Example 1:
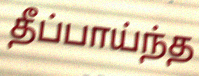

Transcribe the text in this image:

தீப்பாய்ந்த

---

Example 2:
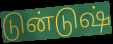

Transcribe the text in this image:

டுன்டுஷ்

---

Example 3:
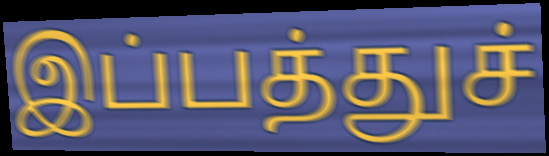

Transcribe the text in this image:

இப்பத்துச்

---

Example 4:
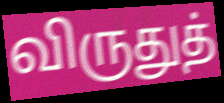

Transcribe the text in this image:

விருதுத்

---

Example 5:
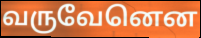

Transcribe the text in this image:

வருவேனென